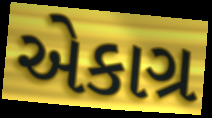
એકાગ્ર